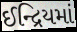
ઈન્દ્રિયમાં